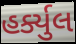
હર્ક્યુલ